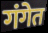
गंगेत